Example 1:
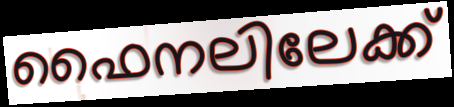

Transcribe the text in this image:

ഫൈനലിലേക്ക്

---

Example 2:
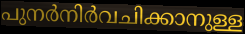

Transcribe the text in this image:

പുനർനിർവചിക്കാനുള്ള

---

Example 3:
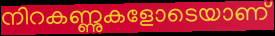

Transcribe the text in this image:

നിറകണ്ണുകളോടെയാണ്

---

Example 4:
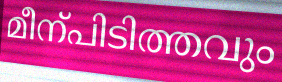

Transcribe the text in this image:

മീന്പിടിത്തവും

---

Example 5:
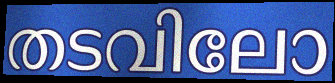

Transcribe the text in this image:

തടവിലോ